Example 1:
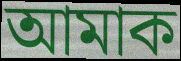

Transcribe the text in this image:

আমাক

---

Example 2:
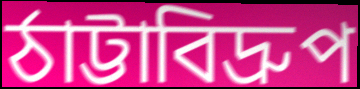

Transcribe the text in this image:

ঠাট্টাবিদ্রুপ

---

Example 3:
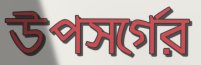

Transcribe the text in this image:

উপসর্গের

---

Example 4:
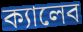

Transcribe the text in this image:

ক্যালেব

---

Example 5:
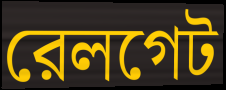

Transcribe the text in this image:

রেলগেট